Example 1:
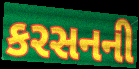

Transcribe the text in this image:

કરસનની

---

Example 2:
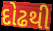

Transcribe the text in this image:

દોઢથી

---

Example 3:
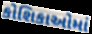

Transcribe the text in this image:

કોશિકાઓમાં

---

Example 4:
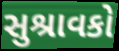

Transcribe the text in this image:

સુશ્રાવકો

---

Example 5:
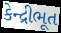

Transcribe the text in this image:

કેન્દ્રીભૂત